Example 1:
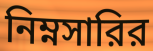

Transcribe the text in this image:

নিম্নসারির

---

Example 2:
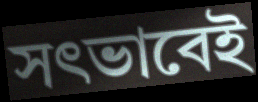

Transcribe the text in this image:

সৎভাবেই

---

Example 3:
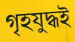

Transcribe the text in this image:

গৃহযুদ্ধই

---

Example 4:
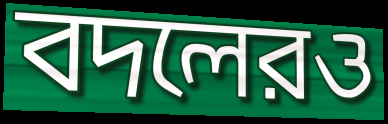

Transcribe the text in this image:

বদলেরও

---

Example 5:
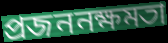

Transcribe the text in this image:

প্রজননক্ষমতা